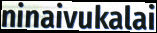
ninaivukalai